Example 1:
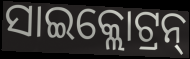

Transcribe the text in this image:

ସାଇକ୍ଲୋଟ୍ରନ୍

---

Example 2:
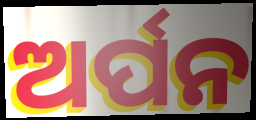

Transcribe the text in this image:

ଅର୍ପନ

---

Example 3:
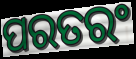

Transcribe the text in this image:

ପରତରଂ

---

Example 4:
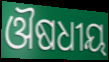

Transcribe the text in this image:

ଔଷଧୀୟ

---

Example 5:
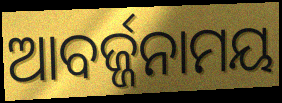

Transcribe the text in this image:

ଆବର୍ଜ୍ଜନାମୟ